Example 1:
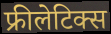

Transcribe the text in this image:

फ्रीलेटिक्स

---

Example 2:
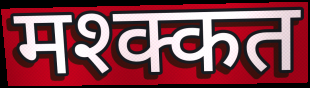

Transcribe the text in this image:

मश्क्कत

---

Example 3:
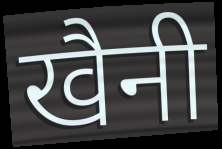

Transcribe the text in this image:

खैनी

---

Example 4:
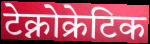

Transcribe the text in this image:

टेक्नोक्रेटिक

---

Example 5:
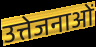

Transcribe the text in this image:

उत्तेजनाओं